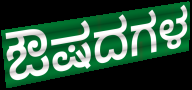
ಔಷದಗಳ